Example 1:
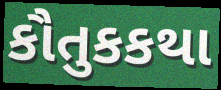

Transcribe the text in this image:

કૌતુકકથા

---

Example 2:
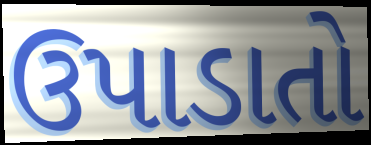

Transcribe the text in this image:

ઉપાડાતો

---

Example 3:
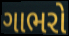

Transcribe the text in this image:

ગાભરો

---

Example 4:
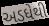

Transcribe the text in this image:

અડધેથી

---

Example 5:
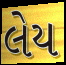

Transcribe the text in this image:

લેય